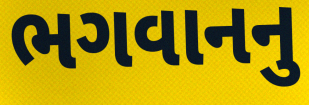
ભગવાનનુ